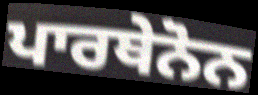
ਪਾਰਥੇਨੋਨ